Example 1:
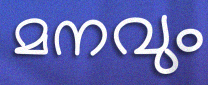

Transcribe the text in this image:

മനവും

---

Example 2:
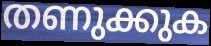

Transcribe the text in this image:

തണുക്കുക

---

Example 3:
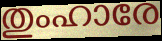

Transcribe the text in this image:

തുംഹാരേ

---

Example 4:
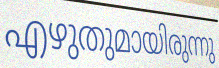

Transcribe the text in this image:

എഴുതുമായിരുന്നു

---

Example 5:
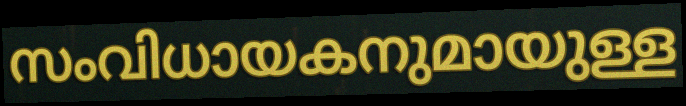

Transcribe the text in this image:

സംവിധായകനുമായുള്ള